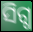
ସିଗ୍ଧ